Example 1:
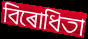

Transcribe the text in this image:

বিৰোধিতা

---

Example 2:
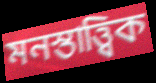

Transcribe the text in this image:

মনস্তাত্ত্বিক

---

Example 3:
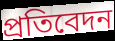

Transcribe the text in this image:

প্ৰতিবেদন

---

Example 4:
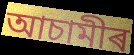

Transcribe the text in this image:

আচামীৰ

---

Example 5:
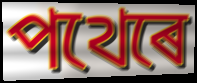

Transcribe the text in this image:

পথেৰে